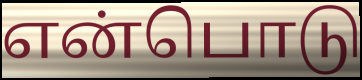
என்பொடு